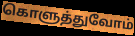
கொளுத்துவோம்